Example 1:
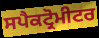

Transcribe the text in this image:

ਸਪੈਕਟ੍ਰੋਮੀਟਰ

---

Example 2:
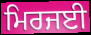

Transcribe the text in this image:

ਮਿਰਜਈ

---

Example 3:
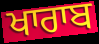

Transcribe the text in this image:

ਖਾਰਾਬ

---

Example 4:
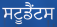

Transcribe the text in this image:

ਸਟੂਡੈਂਟਸ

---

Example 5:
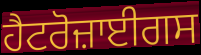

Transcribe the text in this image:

ਹੈਟਰੋਜ਼ਾਈਗਸ